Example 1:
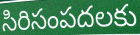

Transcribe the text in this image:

సిరిసంపదలకు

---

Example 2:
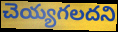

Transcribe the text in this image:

చెయ్యగలదని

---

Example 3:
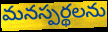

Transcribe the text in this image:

మనస్పర్థలను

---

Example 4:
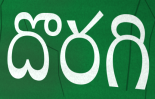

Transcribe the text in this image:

దొరగి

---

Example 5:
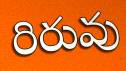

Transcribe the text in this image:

రిరువు